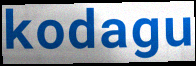
kodagu